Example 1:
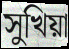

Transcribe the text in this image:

সুখিয়া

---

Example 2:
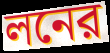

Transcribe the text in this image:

লনের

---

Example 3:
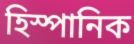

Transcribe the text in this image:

হিস্পানিক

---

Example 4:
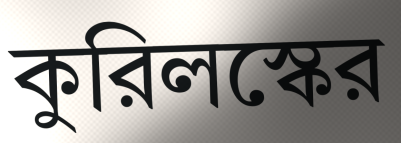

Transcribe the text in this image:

কুরিলস্কের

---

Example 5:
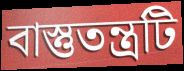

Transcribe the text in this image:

বাস্তুতন্ত্রটি